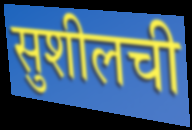
सुशीलची